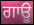
ਗਾਊ